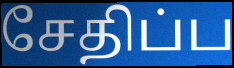
சேதிப்ப